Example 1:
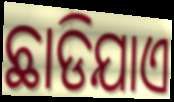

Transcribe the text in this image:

ଛାଡିଯାଏ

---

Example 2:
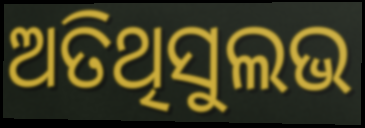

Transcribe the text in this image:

ଅତିଥିସୁଲଭ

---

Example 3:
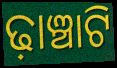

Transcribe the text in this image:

ଢ଼ାଞ୍ଚାଟି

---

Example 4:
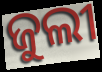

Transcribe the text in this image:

ଜୁଲୀ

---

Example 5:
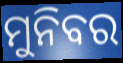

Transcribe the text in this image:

ମୁନିବର